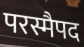
परस्मैपद